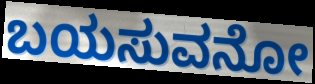
ಬಯಸುವನೋ